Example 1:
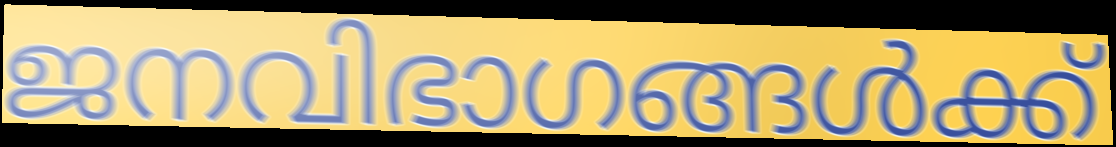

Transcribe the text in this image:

ജനവിഭാഗങ്ങൾക്ക്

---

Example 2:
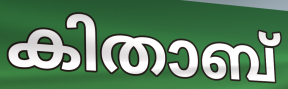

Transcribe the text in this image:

കിതാബ്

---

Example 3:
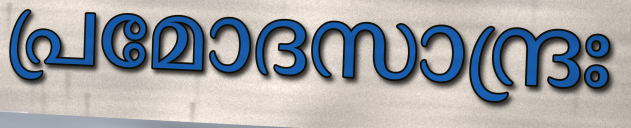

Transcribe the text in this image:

പ്രമോദസാന്ദ്രഃ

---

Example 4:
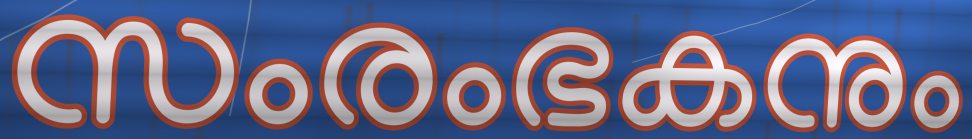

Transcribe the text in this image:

സംരംഭകനും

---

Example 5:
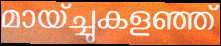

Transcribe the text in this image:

മായ്ച്ചുകളഞ്ഞ്